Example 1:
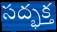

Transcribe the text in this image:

సద్భక్త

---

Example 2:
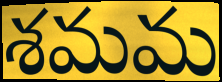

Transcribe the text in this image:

శమమ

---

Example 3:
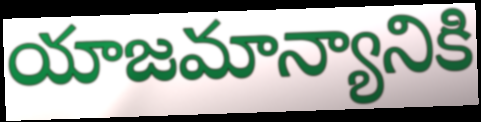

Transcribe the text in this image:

యాజమాన్యానికి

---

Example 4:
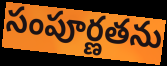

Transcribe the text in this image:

సంపూర్ణతను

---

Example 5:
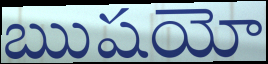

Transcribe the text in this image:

ఋషయో